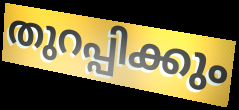
തുറപ്പിക്കും